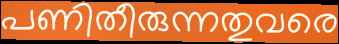
പണിതീരുന്നതുവരെ